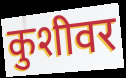
कुशीवर